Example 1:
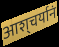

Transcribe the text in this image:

आश्चर्यानं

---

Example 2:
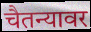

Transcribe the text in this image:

चैतन्यावर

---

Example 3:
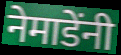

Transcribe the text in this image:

नेमाडेंनी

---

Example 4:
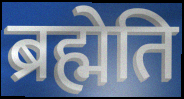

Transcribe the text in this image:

ब्रह्मेति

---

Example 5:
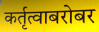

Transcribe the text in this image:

कर्तृत्वाबरोबर